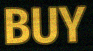
BUY